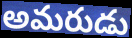
అమరుడు